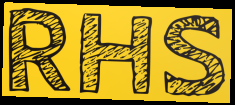
RHS